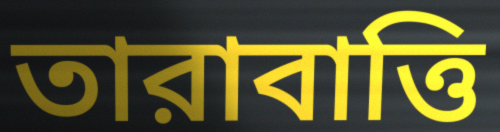
তারাবাত্তি